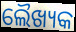
ଲୈଖ୍ୟକ